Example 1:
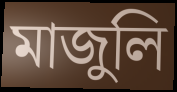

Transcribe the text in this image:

মাজুলি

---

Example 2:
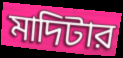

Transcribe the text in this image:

মাদিটার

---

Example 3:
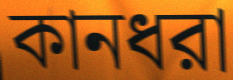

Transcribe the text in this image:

কানধরা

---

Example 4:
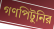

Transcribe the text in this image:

গণপিটুনির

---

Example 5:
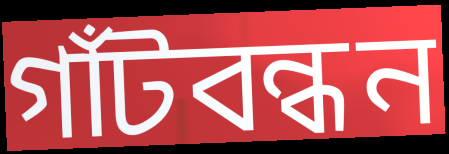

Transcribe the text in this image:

গাঁটবন্ধন